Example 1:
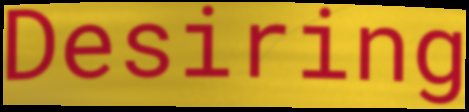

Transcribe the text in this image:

Desiring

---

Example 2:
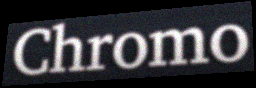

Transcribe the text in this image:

Chromo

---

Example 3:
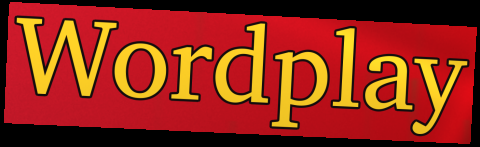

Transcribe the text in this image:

Wordplay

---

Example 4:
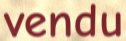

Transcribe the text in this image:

vendu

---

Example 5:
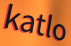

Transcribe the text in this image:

katlo